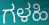
ಗಳಹಿ